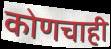
कोणचाही